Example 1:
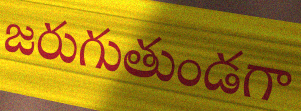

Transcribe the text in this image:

జరుగుతుండగా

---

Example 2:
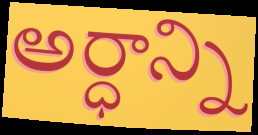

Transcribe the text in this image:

అర్ధాన్ని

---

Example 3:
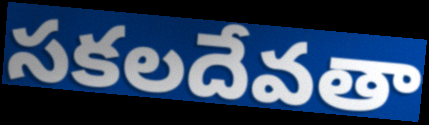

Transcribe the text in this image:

సకలదేవతా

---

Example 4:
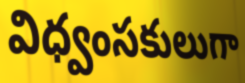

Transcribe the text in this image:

విధ్వంసకులుగా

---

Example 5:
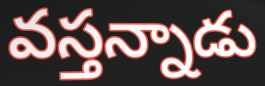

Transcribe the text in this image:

వస్తన్నాడు